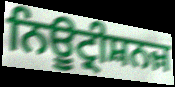
ਨਿਊਟ੍ਰੀਸ਼ਨਜ਼